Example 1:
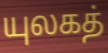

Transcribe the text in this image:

யுலகத்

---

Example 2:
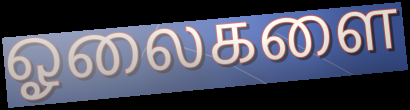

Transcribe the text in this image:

ஓலைகளை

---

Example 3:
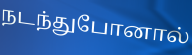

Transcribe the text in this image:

நடந்துபோனால்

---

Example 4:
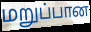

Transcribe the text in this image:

மறுப்பான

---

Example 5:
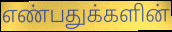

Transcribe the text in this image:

எண்பதுக்களின்